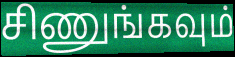
சிணுங்கவும்